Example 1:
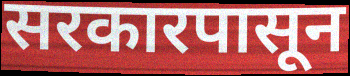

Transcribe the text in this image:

सरकारपासून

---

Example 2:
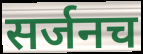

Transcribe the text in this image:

सर्जनच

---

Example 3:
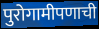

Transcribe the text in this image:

पुरोगामीपणाची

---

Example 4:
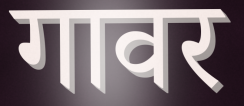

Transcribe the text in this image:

गावर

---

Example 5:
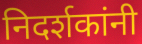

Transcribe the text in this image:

निदर्शकांनी